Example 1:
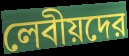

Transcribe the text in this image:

লেবীয়দের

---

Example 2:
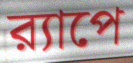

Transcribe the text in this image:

র‍্যাপে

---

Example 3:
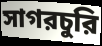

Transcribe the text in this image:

সাগরচুরি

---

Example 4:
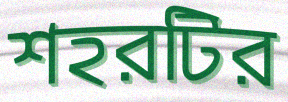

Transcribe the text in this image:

শহরটির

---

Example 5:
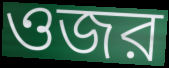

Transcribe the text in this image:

ওজর